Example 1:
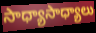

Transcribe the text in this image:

సాధ్యాసాధ్యాలు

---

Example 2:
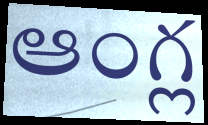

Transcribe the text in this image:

ఆంగ్ల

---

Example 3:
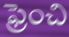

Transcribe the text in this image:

ఫ్రెంచి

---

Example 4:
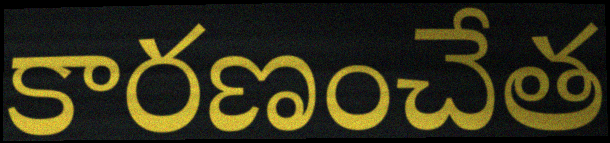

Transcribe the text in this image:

కారణంచేత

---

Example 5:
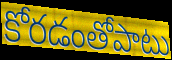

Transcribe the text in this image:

కోరడంతోపాటు